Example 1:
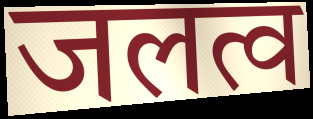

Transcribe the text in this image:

जलत्व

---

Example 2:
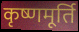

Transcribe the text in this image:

कृष्णमूर्ति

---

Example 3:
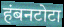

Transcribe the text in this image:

हंबनटोटा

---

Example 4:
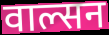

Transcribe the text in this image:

वाल्सन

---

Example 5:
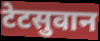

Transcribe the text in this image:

टेटसुवान